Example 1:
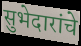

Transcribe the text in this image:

सुभेदारांचे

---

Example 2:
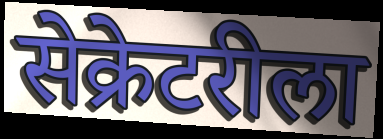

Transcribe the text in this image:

सेक्रेटरीला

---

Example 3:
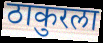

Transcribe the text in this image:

ठाकुरला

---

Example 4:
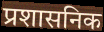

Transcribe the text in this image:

प्रशासनिक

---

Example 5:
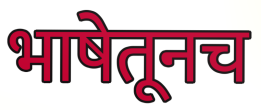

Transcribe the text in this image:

भाषेतूनच